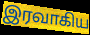
இரவாகிய